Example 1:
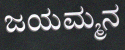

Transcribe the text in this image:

ಜಯಮ್ಮನ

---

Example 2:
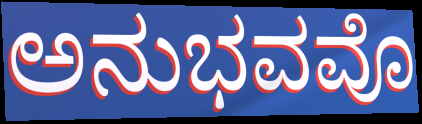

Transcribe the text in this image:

ಅನುಭವವೊ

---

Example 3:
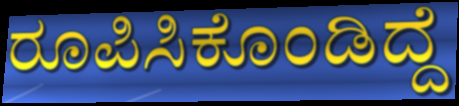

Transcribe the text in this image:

ರೂಪಿಸಿಕೊಂಡಿದ್ದೆ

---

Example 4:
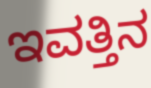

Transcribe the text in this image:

ಇವತ್ತಿನ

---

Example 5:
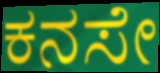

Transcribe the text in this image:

ಕನಸೇ